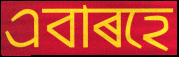
এবাৰহে